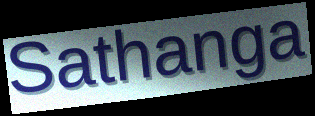
Sathanga